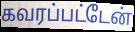
கவரப்பட்டேன்